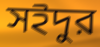
সইদুর